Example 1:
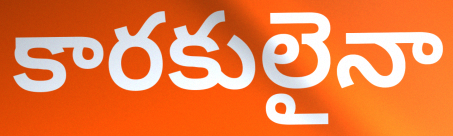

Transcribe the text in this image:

కారకులైనా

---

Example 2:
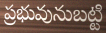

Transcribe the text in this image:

ప్రభువునుబట్టి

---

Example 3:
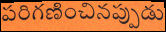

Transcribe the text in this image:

పరిగణించినప్పుడు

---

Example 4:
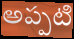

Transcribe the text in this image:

అప్పటి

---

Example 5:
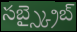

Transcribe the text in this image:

సబ్స్క్రైబ్